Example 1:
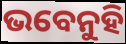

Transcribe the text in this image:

ଭବେନୁହି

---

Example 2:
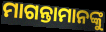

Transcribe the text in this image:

ମାଗନ୍ତାମାନଙ୍କୁ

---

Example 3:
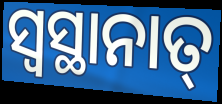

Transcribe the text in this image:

ସ୍ଵସ୍ଥାନାତ୍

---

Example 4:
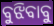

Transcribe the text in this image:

ବୁଝିବାବୁ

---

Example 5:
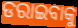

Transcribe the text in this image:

ଡରାଇବାକୁ